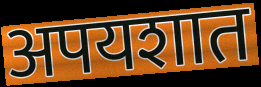
अपयशात